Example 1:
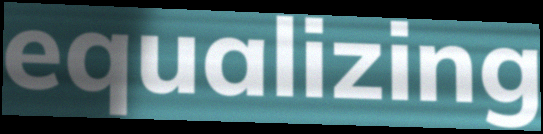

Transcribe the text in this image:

equalizing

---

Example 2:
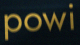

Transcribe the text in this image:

powi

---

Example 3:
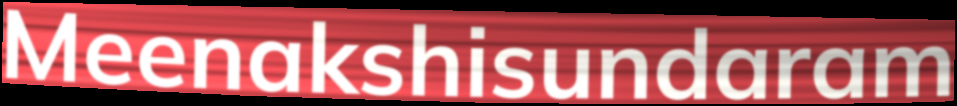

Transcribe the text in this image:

Meenakshisundaram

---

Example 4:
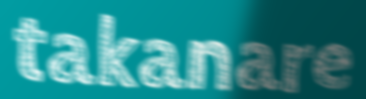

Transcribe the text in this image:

takanare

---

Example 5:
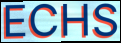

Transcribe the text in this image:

ECHS